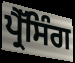
ਪ੍ਰੈੱਸਿੰਗ